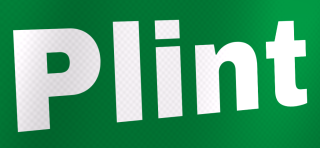
Plint